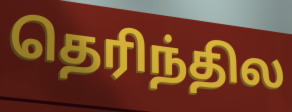
தெரிந்தில